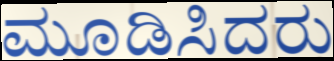
ಮೂಡಿಸಿದರು